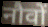
नौवों